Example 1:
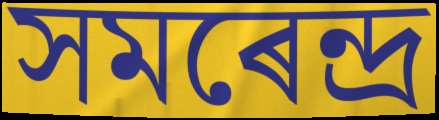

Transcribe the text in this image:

সমৰেন্দ্ৰ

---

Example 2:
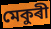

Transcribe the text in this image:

মেকুৰী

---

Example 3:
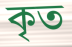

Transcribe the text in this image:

কৃত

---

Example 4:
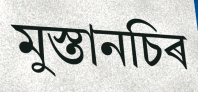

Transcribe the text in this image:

মুস্তানচিৰ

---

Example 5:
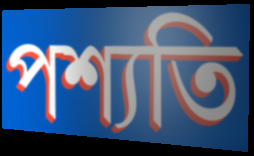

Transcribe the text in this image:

পশ্যতি